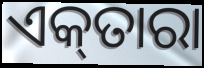
ଏକ୍‌ତାରା